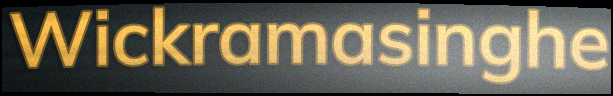
Wickramasinghe